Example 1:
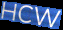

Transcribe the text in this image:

HCW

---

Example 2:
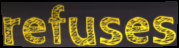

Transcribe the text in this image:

refuses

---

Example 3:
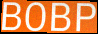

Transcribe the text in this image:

BOBP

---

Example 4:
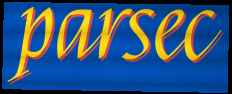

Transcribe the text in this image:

parsec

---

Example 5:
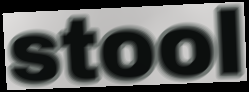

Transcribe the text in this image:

stool